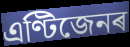
এণ্টিজেনৰ